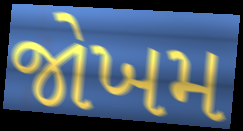
જોખમ